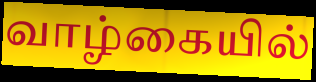
வாழ்கையில்